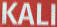
KALI